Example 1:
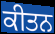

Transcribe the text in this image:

ਕੀਤਨ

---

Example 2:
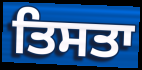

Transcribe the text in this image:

ਤਿਸਤਾ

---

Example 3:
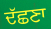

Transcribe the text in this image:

ਦੱਛਣਾ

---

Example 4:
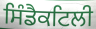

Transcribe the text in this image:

ਸਿੰਡੈਕਟਿਲੀ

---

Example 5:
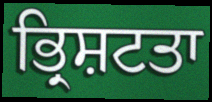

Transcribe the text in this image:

ਭ੍ਰਿਸ਼ਟਤਾ